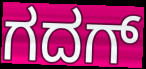
ಗದಗ್